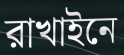
রাখাইনে